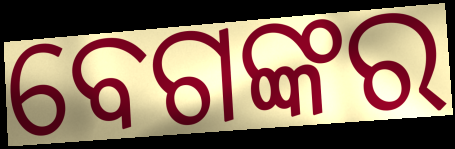
ବେଗଙ୍କର